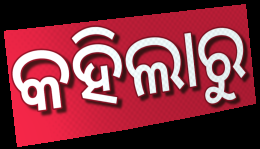
କହିଲାରୁ